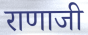
राणाजी